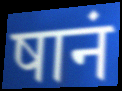
षानं